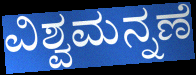
ವಿಶ್ವಮನ್ನಣೆ